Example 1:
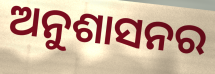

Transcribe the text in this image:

ଅନୁଶାସନର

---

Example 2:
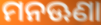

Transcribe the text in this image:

ମନଊଣା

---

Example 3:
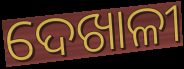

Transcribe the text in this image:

ଦେଖାଳୀ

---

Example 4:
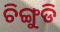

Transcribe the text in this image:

ଚିଙ୍ଗୁଡି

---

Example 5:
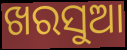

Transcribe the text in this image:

ଖରସୁଆ